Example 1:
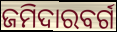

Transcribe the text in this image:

ଜମିଦାରବର୍ଗ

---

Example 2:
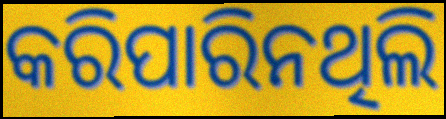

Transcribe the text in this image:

କରିପାରିନଥିଲି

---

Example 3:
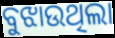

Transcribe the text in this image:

ବୁଝାଉଥିଲା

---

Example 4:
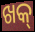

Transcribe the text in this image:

ଖକ୍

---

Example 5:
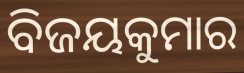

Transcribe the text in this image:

ବିଜୟକୁମାର